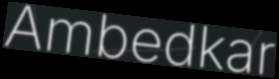
Ambedkar